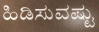
ಹಿಡಿಸುವಷ್ಟು